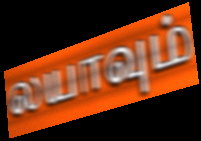
லயாவும்